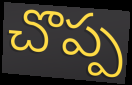
చొప్ప